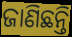
ଜାଣିଛନ୍ତି